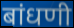
बांधणी